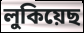
লুকিয়েছ